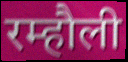
रम्हौली